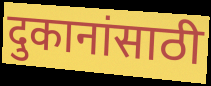
दुकानांसाठी